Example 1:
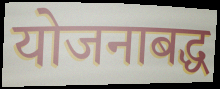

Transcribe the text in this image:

योजनाबद्ध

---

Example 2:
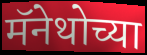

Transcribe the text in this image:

मॅनेथोच्या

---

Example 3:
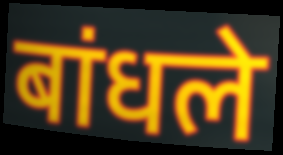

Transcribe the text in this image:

बांधले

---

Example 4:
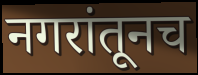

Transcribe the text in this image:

नगरांतूनच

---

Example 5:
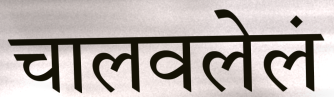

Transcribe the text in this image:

चालवलेलं